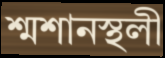
শ্মশানস্থলী